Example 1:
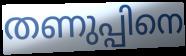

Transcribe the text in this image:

തണുപ്പിനെ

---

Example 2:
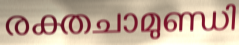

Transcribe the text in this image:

രക്തചാമുണ്ഡി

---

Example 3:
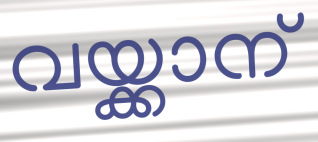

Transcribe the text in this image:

വയ്ക്കാന്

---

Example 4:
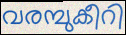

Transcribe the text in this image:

വരമ്പുകീറി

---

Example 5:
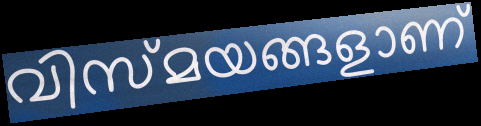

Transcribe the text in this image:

വിസ്മയങ്ങളാണ്